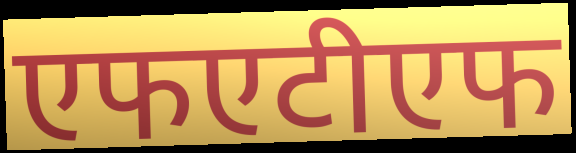
एफएटीएफ